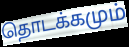
தொடக்கமும்